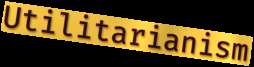
Utilitarianism